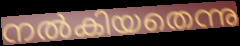
നൽകിയതെന്നു